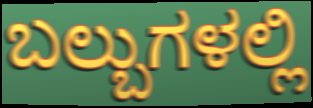
ಬಲ್ಬುಗಳಲ್ಲಿ